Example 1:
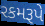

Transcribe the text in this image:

રકમરૂપે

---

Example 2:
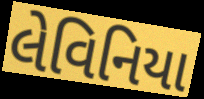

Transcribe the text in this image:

લેવિનિયા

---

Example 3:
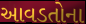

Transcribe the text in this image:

આવડતોના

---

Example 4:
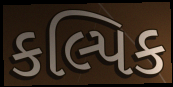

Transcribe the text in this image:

કલ્પિક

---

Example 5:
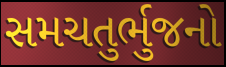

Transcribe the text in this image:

સમચતુર્ભુજનો